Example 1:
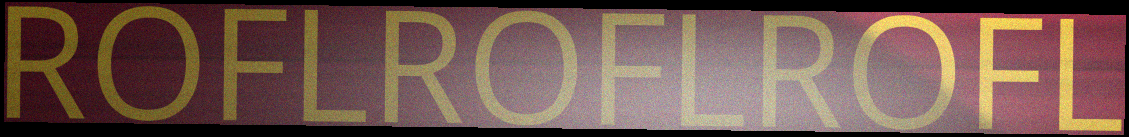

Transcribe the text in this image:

ROFLROFLROFL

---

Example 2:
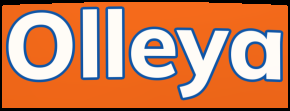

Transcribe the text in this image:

Olleya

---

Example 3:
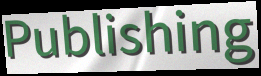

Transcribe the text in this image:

Publishing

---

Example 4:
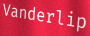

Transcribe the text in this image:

Vanderlip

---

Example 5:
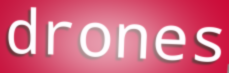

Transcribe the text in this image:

drones